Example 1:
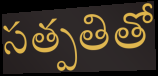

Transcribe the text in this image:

సత్పతితో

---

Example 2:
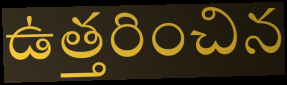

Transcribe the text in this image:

ఉత్తరించిన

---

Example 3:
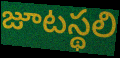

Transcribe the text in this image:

జూటస్థలి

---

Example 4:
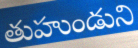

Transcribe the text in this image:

తుహుండుని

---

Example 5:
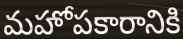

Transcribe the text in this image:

మహోపకారానికి